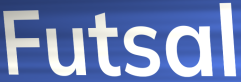
Futsal